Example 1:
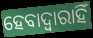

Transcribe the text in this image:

ହେବାଦ୍ଵାରାହିଁ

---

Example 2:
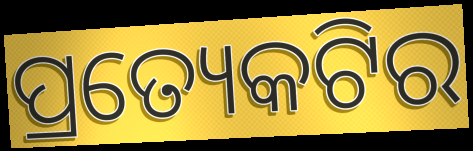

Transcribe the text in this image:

ପ୍ରତ୍ୟେକଟିର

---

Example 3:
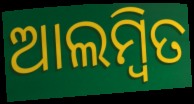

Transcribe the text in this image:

ଆଲମ୍ୱିତ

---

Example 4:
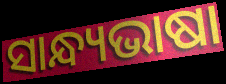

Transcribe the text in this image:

ସାନ୍ଧ୍ୟଭାଷା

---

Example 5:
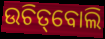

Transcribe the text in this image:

ଉଚିତ୍‌ବୋଲି